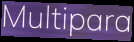
Multipara